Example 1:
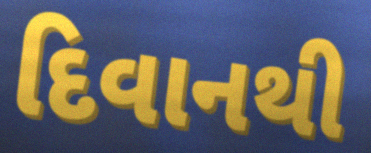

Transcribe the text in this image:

દિવાનથી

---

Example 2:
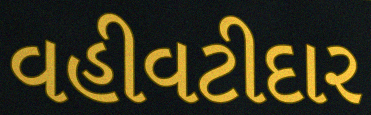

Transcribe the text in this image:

વહીવટીદાર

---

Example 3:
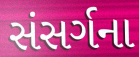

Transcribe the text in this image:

સંસર્ગના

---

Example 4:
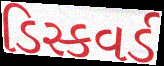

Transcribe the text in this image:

ડિસ્કવર્ડ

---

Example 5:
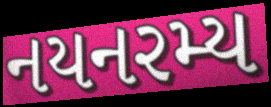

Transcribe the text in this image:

નયનરમ્ય